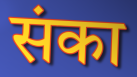
संका